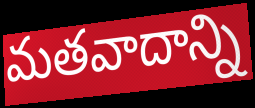
మతవాదాన్ని